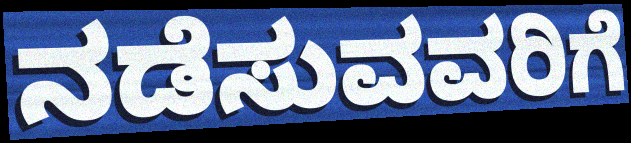
ನಡೆಸುವವರಿಗೆ